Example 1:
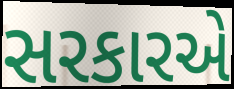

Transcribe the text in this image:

સરકારએ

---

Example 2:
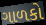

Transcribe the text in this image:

ગાળકો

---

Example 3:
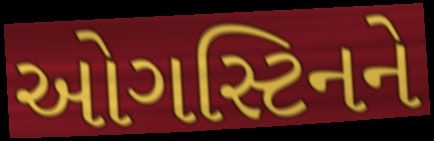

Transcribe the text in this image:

ઓગસ્ટિનને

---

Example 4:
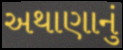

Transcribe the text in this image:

અથાણાનું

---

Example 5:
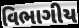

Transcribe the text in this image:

વિભાગીય